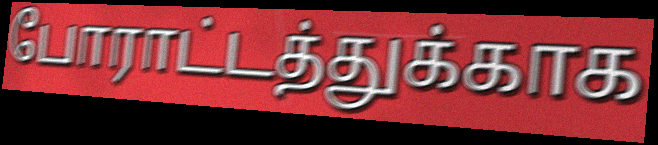
போராட்டத்துக்காக